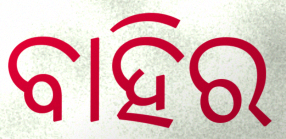
ବାହିର